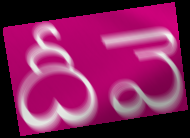
దీవె